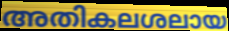
അതികലശലായ